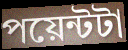
পয়েন্টটা